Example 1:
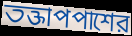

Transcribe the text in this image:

তক্তাপপাশের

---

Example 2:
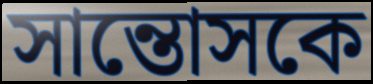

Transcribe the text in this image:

সান্তোসকে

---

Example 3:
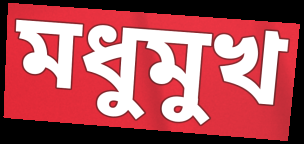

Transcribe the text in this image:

মধুমুখ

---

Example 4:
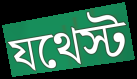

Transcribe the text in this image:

যথেস্ট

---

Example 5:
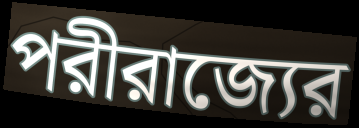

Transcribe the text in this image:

পরীরাজ্যের